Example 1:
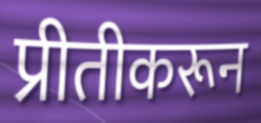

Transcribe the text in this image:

प्रीतीकरून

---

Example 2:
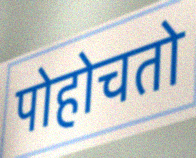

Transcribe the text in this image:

पोहोचतो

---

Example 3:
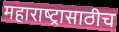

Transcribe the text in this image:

महाराष्ट्रासाठीच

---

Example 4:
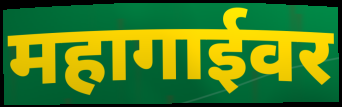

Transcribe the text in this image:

महागाईवर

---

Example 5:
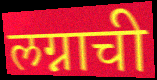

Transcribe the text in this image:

लग्नाची